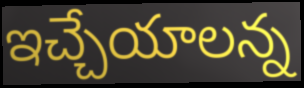
ఇచ్చేయాలన్న